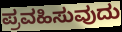
ಪ್ರವಹಿಸುವುದು